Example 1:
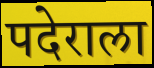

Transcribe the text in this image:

पदेराला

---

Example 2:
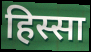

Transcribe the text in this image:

हिस्सा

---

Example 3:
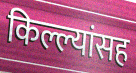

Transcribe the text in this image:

किल्ल्यांसह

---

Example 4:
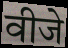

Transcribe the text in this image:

वीजे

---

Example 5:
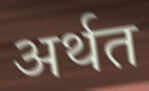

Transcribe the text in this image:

अर्थत